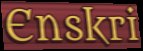
Enskri